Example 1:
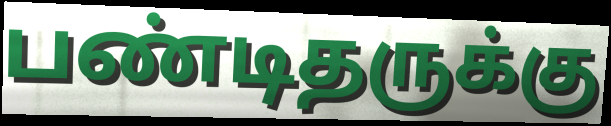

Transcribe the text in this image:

பண்டிதருக்கு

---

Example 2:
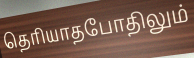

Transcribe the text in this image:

தெரியாதபோதிலும்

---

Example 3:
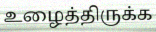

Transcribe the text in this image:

உழைத்திருக்க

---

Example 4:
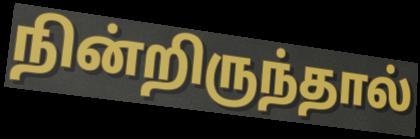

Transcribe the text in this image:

நின்றிருந்தால்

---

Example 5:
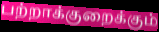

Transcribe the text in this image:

பற்றாக்குறைக்கும்